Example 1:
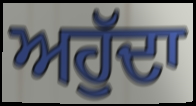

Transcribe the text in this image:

ਅਹੁੱਦਾ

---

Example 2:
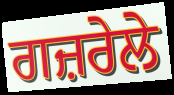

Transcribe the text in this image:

ਗਜ਼ਰੇਲੇ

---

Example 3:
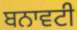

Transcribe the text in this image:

ਬਨਾਵਟੀ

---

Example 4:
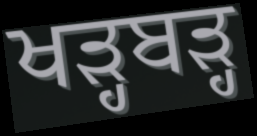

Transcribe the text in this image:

ਖੜ੍ਹਬੜ੍ਹ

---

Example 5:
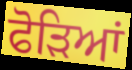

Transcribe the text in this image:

ਫੋੜਿਆਂ